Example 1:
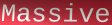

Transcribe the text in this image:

Massive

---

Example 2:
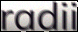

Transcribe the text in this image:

radii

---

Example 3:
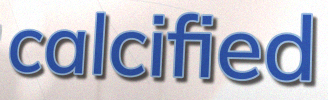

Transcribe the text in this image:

calcified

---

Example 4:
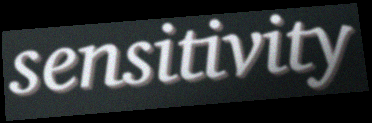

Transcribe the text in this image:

sensitivity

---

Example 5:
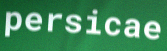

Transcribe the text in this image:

persicae